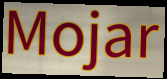
Mojar